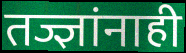
तज्ज्ञांनाही